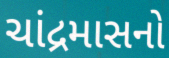
ચાંદ્રમાસનો